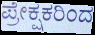
ಪ್ರೇಕ್ಷಕರಿಂದ